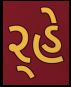
ર્‍હે